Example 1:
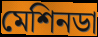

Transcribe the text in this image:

মেশিনডা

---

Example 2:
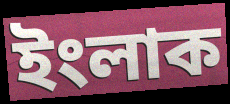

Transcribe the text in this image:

ইংলাক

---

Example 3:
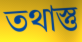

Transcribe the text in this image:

তথাস্তু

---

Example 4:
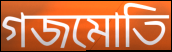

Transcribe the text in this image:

গজমোতি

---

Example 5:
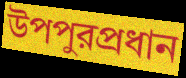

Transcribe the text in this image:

উপপুরপ্রধান